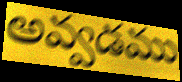
అవ్వడము